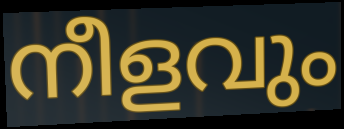
നീളവും